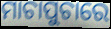
ମାଚାପୁଚାରେ